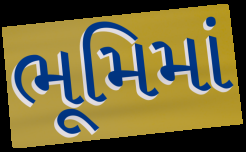
ભૂમિમાં